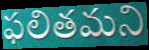
ఫలితమని